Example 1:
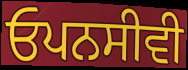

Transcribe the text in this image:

ਓਪਨਸੀਵੀ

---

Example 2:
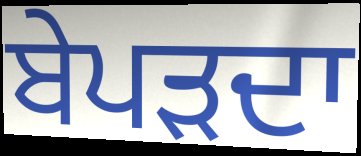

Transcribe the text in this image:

ਬੇਪੜਦਾ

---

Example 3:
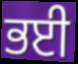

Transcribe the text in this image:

ਭਈ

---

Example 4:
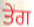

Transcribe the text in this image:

ਤੇਗ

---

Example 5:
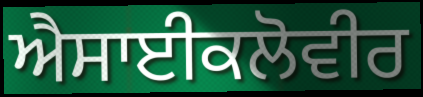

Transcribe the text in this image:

ਐਸਾਈਕਲੋਵੀਰ